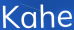
Kahe